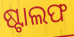
ଷ୍ଟାଲଫ